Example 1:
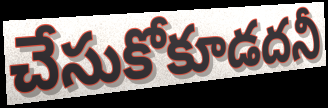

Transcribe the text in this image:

చేసుకోకూడదనీ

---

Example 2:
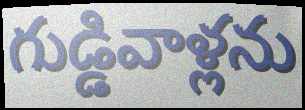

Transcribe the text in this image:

గుడ్డివాళ్లను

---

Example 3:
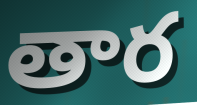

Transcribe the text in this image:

తార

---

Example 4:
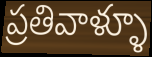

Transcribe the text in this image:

ప్రతివాళ్ళూ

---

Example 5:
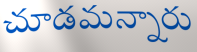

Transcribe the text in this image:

చూడమన్నారు